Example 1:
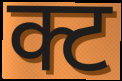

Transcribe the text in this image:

क्ट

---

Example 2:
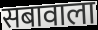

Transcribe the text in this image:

सबावाला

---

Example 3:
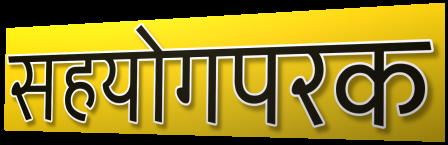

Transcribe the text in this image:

सहयोगपरक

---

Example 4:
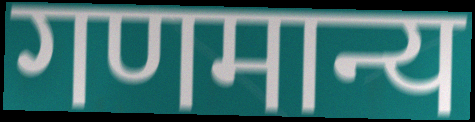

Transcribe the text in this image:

गणमान्‍य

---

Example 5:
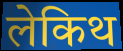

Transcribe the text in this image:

लेकिथ